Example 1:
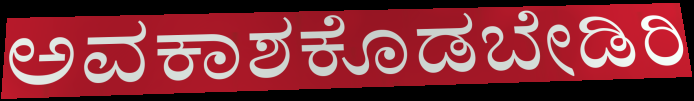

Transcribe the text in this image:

ಅವಕಾಶಕೊಡಬೇಡಿರಿ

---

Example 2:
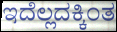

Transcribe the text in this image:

ಇದೆಲ್ಲದಕ್ಕಿಂತ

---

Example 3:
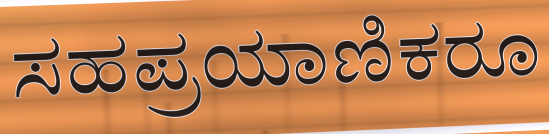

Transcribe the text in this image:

ಸಹಪ್ರಯಾಣಿಕರೂ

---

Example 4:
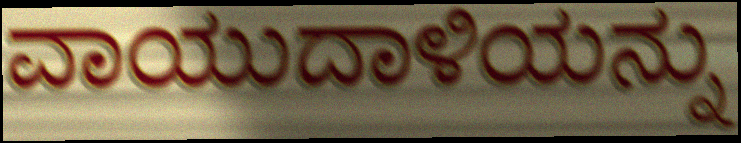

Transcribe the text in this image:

ವಾಯುದಾಳಿಯನ್ನು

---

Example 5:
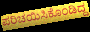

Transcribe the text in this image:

ಪರಿಚಯಿಸಿಕೊಂಡಿದ್ದ